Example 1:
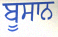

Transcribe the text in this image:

ਬੂਸਾਨ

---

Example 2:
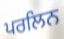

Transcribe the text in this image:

ਪਰਲਿਨ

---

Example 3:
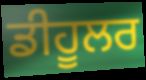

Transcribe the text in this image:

ਡੀਹੂਲਰ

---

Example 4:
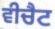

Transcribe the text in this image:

ਵੀਚੈਟ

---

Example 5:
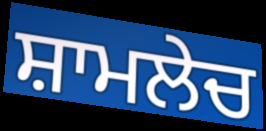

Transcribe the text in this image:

ਸ਼ਾਮਲੇਚ